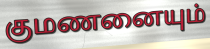
குமணனையும்